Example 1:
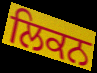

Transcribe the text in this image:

ਲਿਕਨ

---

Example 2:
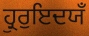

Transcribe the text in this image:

ਹ੍ਰੁਰੁਇਦਯਁ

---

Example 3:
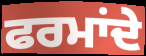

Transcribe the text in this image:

ਫਰਮਾਂਦੇ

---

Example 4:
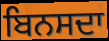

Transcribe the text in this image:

ਬਿਨਸਦਾ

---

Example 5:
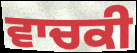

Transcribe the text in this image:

ਵਾਚਕੀ